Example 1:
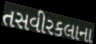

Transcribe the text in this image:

તસવીરકલાના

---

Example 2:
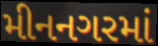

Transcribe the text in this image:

મીનનગરમાં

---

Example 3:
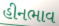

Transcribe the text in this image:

હીનભાવ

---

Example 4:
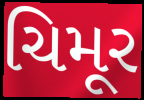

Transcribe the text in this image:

ચિમૂર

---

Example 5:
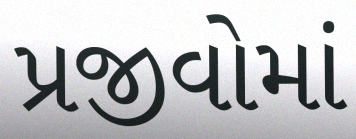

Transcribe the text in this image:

પ્રજીવોમાં